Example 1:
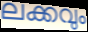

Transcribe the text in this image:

ലക്കവും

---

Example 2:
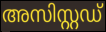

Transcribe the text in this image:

അസിസ്റ്റഡ്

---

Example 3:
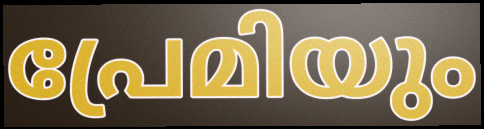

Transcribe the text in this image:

പ്രേമിയും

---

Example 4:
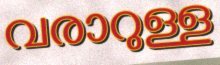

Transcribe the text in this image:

വരാറുള്ള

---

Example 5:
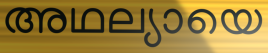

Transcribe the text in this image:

അഥല്യായെ